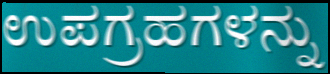
ಉಪಗ್ರಹಗಳನ್ನು